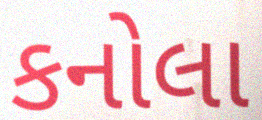
કનોલા